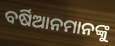
ବର୍ଷିଆନମାନଙ୍କୁ